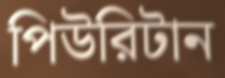
পিউরিটান